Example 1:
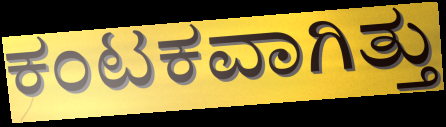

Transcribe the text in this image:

ಕಂಟಕವಾಗಿತ್ತು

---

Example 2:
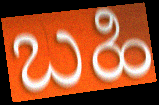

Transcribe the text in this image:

ಬಹಿ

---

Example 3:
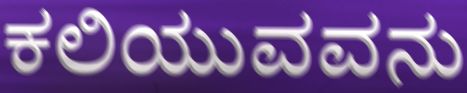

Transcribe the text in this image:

ಕಲಿಯುವವನು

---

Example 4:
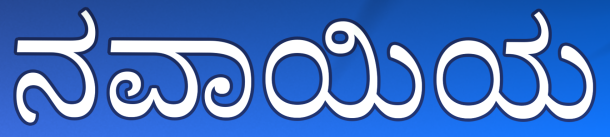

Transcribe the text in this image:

ನವಾಯಿಯ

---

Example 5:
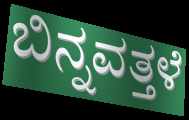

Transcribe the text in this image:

ಬಿನ್ನವತ್ತಳೆ